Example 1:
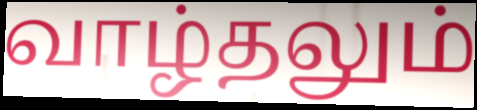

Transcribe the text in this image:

வாழ்தலும்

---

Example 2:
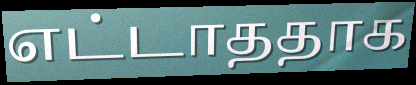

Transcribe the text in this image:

எட்டாததாக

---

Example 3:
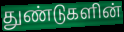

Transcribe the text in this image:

துண்டுகளின்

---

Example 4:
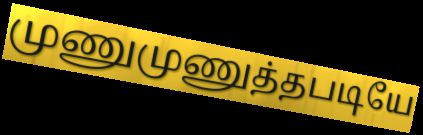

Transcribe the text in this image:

முணுமுணுத்தபடியே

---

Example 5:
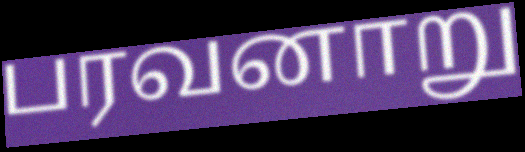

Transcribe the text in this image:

பரவனாறு